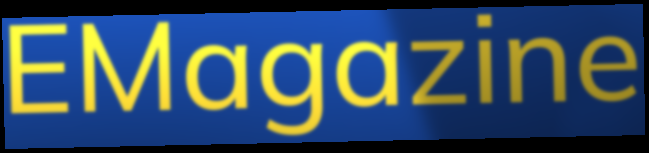
EMagazine